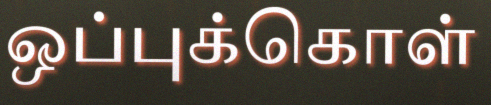
ஒப்புக்கொள்